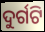
ଦୁର୍ଗଟି